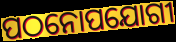
ପଠନୋପଯୋଗୀ